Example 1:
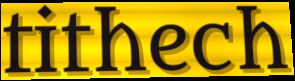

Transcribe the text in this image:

tithech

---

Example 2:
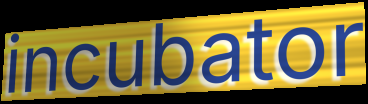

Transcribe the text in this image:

incubator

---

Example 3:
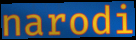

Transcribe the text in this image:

narodi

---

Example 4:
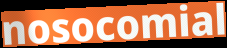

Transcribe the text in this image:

nosocomial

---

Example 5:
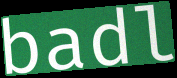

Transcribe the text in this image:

badl